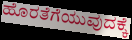
ಹೊರತೆಗೆಯುವುದಕ್ಕೆ